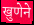
खुणेने